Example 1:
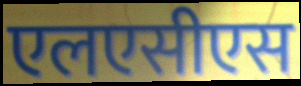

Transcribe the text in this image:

एलएसीएस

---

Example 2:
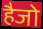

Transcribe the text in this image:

हैजो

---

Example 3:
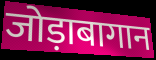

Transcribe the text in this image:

जोड़ाबागान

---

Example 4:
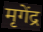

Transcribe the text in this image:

मृगेंद्र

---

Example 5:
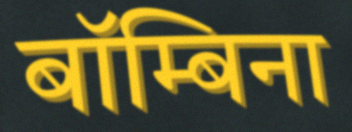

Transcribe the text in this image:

बॉम्बिना